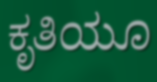
ಕೃತಿಯೂ